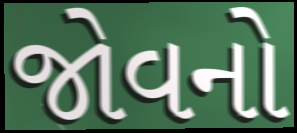
જોવનો